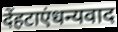
देंहटाएंधन्यवाद